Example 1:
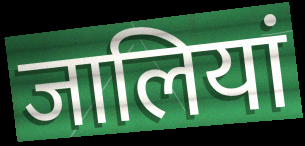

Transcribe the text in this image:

जालियां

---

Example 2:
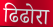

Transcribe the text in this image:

ढिढोरा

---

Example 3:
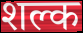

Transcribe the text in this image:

शल्क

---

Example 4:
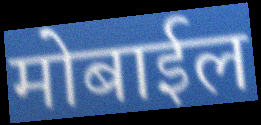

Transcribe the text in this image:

मोबाईल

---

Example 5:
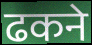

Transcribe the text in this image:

ढकने